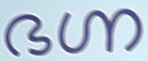
ഭഗ്ന